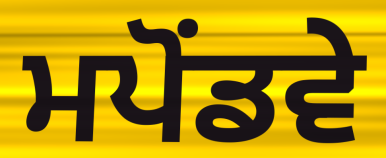
ਮਪੋਂਡਵੇ